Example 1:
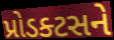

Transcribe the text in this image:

પ્રોડક્ટસને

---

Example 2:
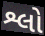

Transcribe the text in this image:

શ્લો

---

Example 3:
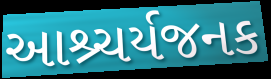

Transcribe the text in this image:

આશ્ર્ચર્યજનક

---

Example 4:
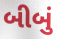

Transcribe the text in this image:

બીબું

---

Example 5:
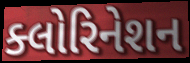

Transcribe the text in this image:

ક્લોરિનેશન